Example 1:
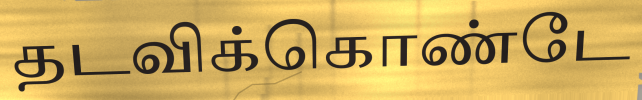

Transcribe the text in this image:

தடவிக்கொண்டே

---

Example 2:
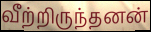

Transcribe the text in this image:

வீற்றிருந்தனன்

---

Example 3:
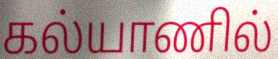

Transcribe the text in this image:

கல்யாணில்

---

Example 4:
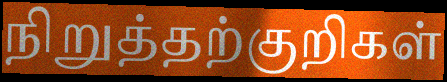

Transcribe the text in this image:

நிறுத்தற்குறிகள்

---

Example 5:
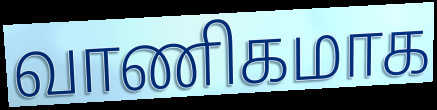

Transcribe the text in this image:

வாணிகமாக